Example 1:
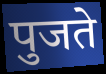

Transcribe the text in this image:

पुजते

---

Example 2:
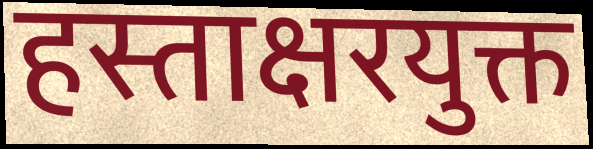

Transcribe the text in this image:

हस्ताक्षरयुक्त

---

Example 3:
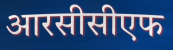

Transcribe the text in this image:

आरसीसीएफ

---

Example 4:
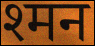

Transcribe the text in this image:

श्मन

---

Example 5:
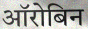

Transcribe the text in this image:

ऑरोबिन